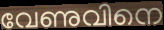
വേണുവിനെ